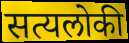
सत्यलोकी